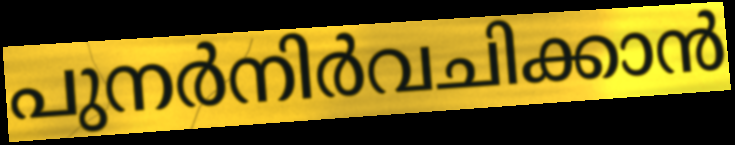
പുനർനിർവചിക്കാൻ